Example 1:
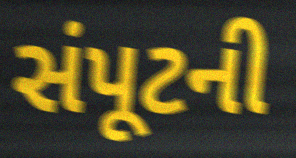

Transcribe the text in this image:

સંપૂટની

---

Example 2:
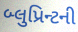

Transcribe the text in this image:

બ્લુપ્રિન્ટની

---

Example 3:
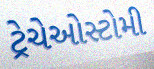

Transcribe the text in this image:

ટ્રેચેઓસ્ટોમી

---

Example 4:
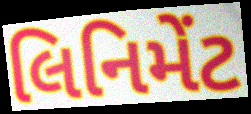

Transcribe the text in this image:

લિનિમેંટ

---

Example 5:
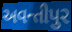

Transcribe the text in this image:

અવન્તીપુર